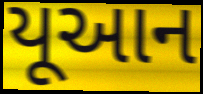
યૂઆન